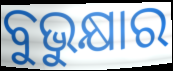
ବୁଭୁକ୍ଷାର